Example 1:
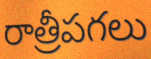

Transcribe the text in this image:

రాత్రీపగలు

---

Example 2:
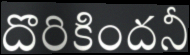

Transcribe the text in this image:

దొరికిందనీ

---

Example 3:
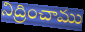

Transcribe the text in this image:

నిద్రించాము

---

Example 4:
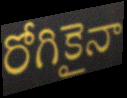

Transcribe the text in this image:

రోగికైనా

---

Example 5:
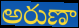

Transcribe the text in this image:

అరుణా